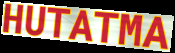
HUTATMA